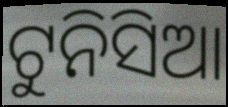
ଟୁନିସିଆ